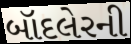
બૉદલેરની